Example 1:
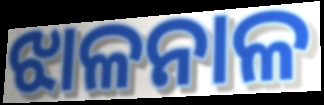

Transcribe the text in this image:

ଝାଳନାଳ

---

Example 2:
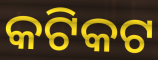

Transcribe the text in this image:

କଟିକଟ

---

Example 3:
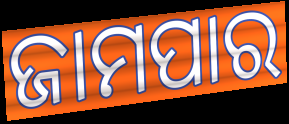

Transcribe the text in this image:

ଜାମପାର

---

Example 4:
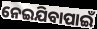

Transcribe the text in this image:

ନେଇଯିବାପାଇଁ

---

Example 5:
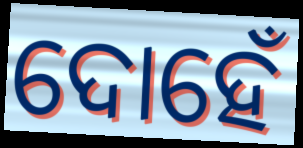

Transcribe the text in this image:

ଦୋହେଁ